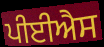
ਪੀਈਐਸ